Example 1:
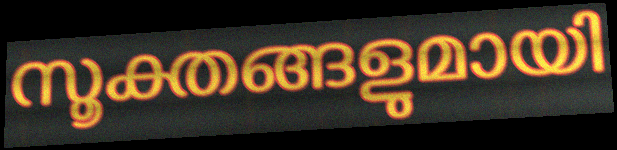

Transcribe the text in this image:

സൂക്തങ്ങളുമായി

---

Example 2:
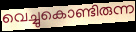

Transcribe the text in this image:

വെച്ചുകൊണ്ടിരുന്ന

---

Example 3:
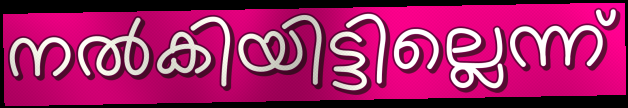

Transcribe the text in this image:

നൽകിയിട്ടില്ലെന്ന്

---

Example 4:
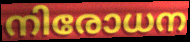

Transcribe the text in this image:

നിരോധന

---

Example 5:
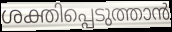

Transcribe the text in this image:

ശക്തിപ്പെടുത്താൻ